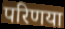
परिणया